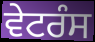
ਵੇਟਰੰਸ